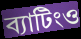
ব্যাটিংও